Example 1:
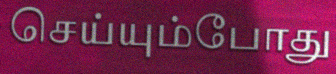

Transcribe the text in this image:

செய்யும்போது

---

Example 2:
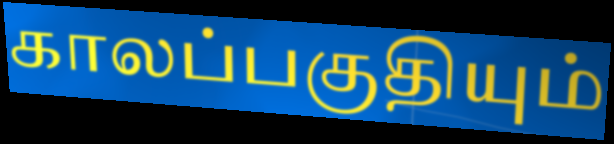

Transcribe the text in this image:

காலப்பகுதியும்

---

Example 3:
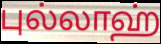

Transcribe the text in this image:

புல்லாஹ்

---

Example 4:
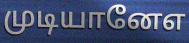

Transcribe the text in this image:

முடியானேஎ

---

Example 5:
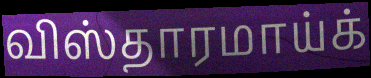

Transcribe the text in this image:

விஸ்தாரமாய்க்